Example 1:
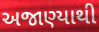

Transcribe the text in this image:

અજાણ્યાથી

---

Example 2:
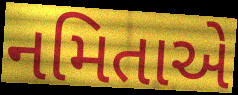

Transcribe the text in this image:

નમિતાએ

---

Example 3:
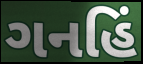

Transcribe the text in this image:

ગનહિં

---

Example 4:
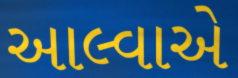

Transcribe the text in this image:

આલ્વાએ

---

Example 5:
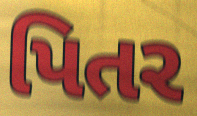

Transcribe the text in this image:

પિતર